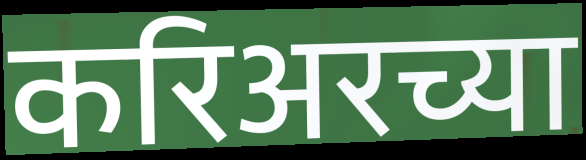
करिअरच्या